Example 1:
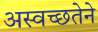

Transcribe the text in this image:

अस्वच्छतेने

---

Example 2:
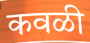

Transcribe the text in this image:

कवळी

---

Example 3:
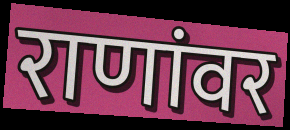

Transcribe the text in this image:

राणांवर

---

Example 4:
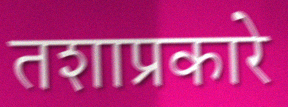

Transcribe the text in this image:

तशाप्रकारे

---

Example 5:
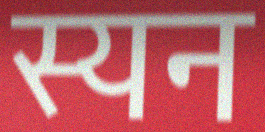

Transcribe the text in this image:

स्यन